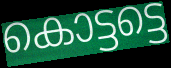
കൊട്ടട്ടെ